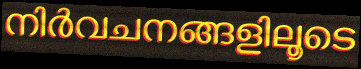
നിർവചനങ്ങളിലൂടെ